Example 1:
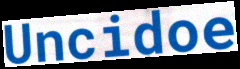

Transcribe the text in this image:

Uncidoe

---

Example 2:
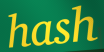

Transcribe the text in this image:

hash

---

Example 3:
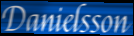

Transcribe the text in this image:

Danielsson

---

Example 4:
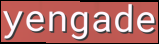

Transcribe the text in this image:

yengade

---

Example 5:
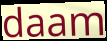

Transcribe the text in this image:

daam